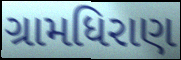
ગ્રામધિરાણ